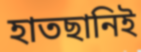
হাতছানিই